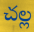
చల్ల